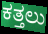
ಕತ್ತಲು